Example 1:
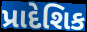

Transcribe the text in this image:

પ્રાદેશિક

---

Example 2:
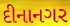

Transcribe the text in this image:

દીનાનગર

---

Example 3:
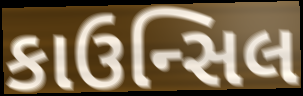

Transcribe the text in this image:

કાઉન્સિલ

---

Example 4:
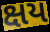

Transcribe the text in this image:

ક્ષય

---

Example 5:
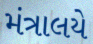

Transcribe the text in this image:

મંત્રાલયે